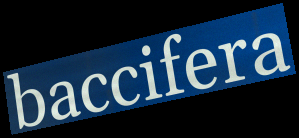
baccifera